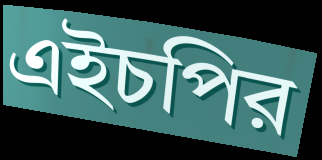
এইচপির